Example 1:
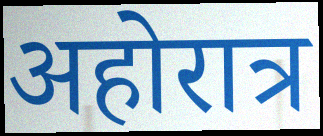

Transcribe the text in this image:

अहोरात्र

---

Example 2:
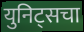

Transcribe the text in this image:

युनिट्सचा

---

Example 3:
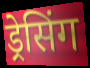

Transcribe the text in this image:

ड्रेसिंग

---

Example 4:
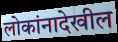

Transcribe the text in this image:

लोकांनादेखील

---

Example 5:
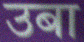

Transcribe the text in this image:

उबा